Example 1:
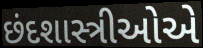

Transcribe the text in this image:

છંદશાસ્ત્રીઓએ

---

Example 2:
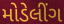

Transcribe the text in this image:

મોડેલીંગ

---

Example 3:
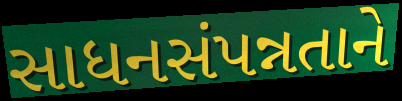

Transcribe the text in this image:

સાધનસંપન્નતાને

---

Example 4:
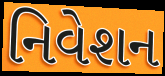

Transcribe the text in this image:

નિવેશન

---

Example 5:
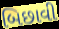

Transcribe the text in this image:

બિછાવી